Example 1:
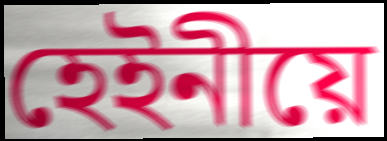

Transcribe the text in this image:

হেইনীয়ে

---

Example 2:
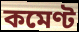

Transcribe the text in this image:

কমেণ্ট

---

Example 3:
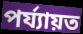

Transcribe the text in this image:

পৰ্য্যায়ত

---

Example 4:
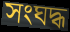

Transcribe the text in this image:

সংঘদ্ধ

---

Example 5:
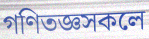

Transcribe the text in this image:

গণিতজ্ঞসকলে